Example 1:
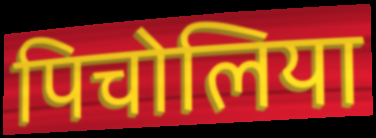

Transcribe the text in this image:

पिचोलिया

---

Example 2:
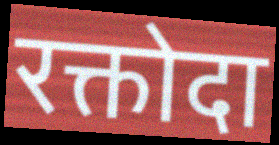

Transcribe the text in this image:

रक्तोदा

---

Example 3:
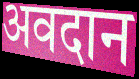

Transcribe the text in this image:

अवदान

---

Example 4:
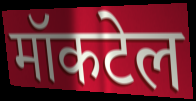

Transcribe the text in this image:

मॉकटेल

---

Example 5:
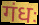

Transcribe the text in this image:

गंधः